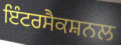
ਇੰਟਰਸੈਕਸ਼ਨਲ